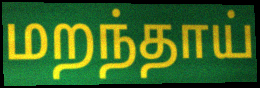
மறந்தாய்